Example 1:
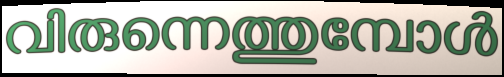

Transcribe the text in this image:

വിരുന്നെത്തുമ്പോൾ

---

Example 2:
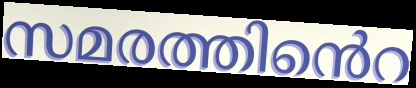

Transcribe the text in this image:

സമരത്തിൻെറ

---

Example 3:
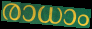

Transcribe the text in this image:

രാധാം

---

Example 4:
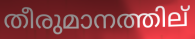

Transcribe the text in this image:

തീരുമാനത്തില്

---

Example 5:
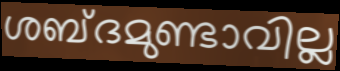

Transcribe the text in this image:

ശബ്ദമുണ്ടാവില്ല